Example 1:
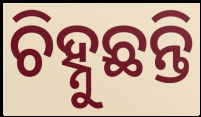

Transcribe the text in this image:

ଚିହ୍ନୁଛନ୍ତି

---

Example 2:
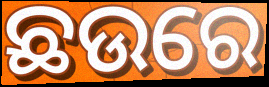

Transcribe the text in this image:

ଛଉରେ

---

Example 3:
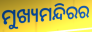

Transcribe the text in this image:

ମୁଖ୍ୟମନ୍ଦିରର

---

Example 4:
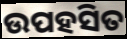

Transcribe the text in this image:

ଉପହସିତ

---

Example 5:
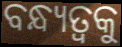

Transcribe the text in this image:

ବନ୍ଧ୍ୟତ୍ୱକୁ